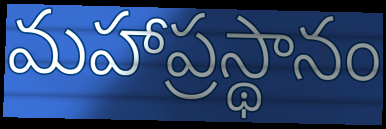
మహాప్రస్థానం